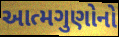
આત્મગુણોનો